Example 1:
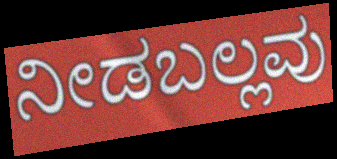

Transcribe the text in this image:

ನೀಡಬಲ್ಲವು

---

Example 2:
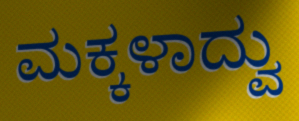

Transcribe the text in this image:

ಮಕ್ಕಳಾದ್ವು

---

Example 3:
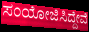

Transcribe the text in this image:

ಸಂಯೋಜಿಸಿದ್ದೇವೆ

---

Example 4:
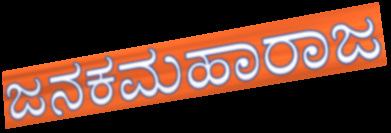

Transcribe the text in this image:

ಜನಕಮಹಾರಾಜ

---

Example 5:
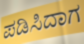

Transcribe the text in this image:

ಪಡಿಸಿದಾಗ